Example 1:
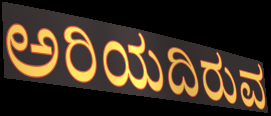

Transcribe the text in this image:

ಅರಿಯದಿರುವ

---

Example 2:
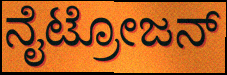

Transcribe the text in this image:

ನೈಟ್ರೋಜನ್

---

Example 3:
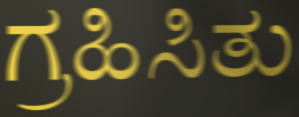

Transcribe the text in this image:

ಗ್ರಹಿಸಿತು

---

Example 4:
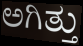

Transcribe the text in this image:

ಅಗಿತ್ತು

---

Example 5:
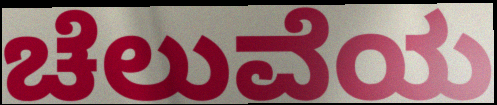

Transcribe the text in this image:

ಚೆಲುವೆಯ